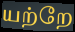
யற்றே